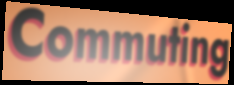
Commuting